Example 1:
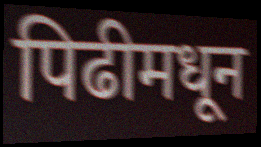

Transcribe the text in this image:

पिढीमधून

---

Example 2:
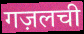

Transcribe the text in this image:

गज़लची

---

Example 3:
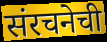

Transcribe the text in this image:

संरचनेची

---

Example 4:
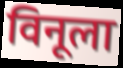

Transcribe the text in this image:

विनूला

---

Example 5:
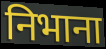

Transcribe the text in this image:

निभाना